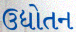
ઉદ્યોતન